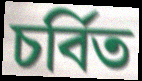
চৰ্বিত